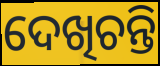
ଦେଖିଚନ୍ତି